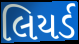
લિયર્ડ